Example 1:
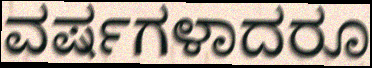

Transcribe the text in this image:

ವರ್ಷಗಳಾದರೂ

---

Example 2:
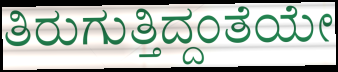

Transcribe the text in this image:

ತಿರುಗುತ್ತಿದ್ದಂತೆಯೇ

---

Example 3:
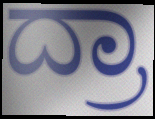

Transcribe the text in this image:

ದ್ರಾ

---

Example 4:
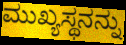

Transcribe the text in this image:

ಮುಖ್ಯಸ್ಥನನ್ನು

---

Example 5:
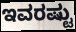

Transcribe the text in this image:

ಇವರಷ್ಟು